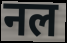
नल